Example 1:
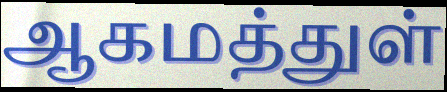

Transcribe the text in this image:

ஆகமத்துள்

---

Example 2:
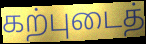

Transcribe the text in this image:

கற்புடைத்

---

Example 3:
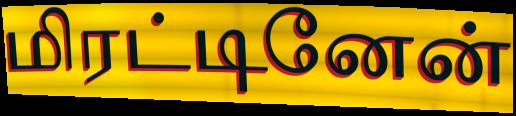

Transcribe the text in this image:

மிரட்டினேன்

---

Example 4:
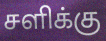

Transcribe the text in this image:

சளிக்கு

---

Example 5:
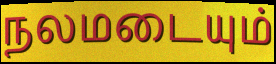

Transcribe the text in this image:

நலமடையும்